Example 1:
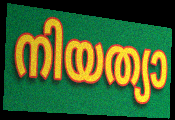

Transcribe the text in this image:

നിയത്യാ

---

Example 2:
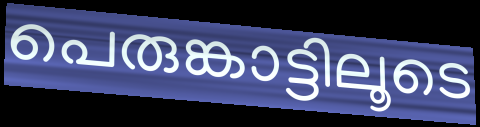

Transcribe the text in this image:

പെരുങ്കാട്ടിലൂടെ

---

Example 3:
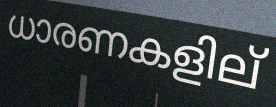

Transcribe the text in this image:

ധാരണകളില്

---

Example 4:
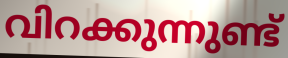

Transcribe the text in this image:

വിറക്കുന്നുണ്ട്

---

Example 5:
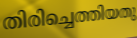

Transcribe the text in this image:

തിരിച്ചെത്തിയതു